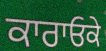
ਕਾਰਾਓਕੇ